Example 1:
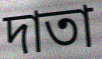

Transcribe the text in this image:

দাতা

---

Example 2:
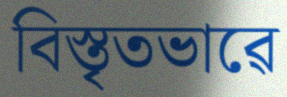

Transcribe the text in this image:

বিস্তৃতভাৱে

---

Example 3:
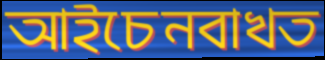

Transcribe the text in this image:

আইচেনবাখত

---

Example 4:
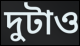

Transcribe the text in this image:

দুটাও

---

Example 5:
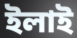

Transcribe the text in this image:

ইলাই